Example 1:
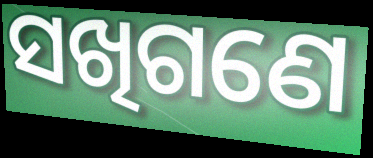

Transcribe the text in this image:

ସଖିଗଣେ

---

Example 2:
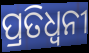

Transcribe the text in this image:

ପ୍ରତିଧ୍ଵନୀ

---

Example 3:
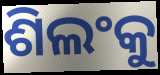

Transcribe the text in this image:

ଶିଲଂକୁ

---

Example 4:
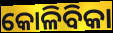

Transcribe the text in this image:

କୋଳିବିକା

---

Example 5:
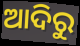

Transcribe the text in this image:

ଆଦିରୁ